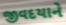
જીવદયાને